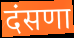
दंसणा